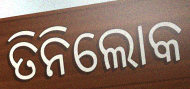
ତିନିଲୋକ